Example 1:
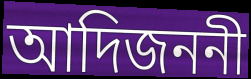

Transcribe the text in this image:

আদিজননী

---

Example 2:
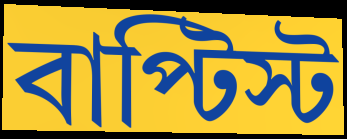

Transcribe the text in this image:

বাপ্টিস্ট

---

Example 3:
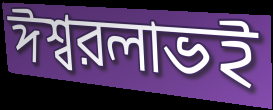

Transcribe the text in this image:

ঈশ্বরলাভই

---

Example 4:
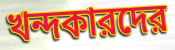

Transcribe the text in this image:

খন্দকারদের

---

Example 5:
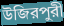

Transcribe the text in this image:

উজিরপুরী